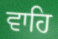
ਵਾਹਿ